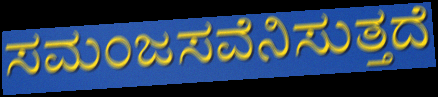
ಸಮಂಜಸವೆನಿಸುತ್ತದೆ